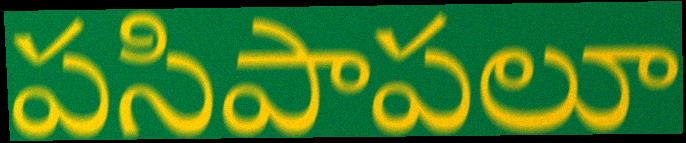
పసిపాపలూ